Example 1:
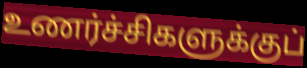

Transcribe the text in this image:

உணர்ச்சிகளுக்குப்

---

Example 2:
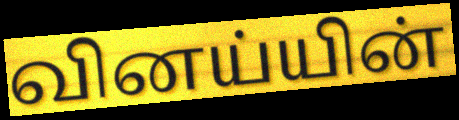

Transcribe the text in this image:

வினய்யின்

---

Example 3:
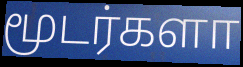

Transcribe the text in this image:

மூடர்களா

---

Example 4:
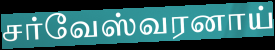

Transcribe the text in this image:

சர்வேஸ்வரனாய்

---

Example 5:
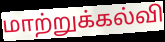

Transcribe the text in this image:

மாற்றுக்கல்வி